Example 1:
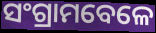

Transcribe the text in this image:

ସଂଗ୍ରାମବେଳେ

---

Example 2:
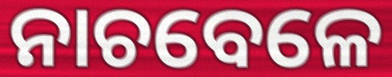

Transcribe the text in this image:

ନାଚବେଳେ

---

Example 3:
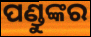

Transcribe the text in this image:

ପଣ୍ଡୁଙ୍କର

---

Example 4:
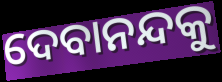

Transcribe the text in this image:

ଦେବାନନ୍ଦକୁ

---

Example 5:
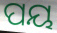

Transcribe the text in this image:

ପୟ